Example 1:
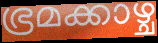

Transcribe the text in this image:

ഭ്രമക്കാഴ്ച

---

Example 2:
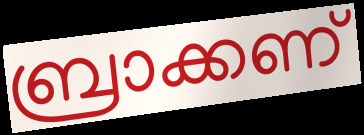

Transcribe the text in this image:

ബ്രാക്കണ്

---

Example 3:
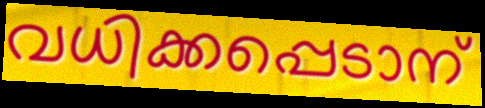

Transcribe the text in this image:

വധിക്കപ്പെടാന്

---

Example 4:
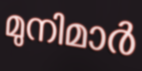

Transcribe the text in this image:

മുനിമാർ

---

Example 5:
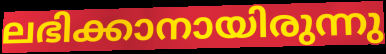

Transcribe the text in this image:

ലഭിക്കാനായിരുന്നു